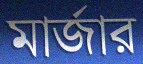
মার্জার